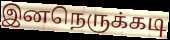
இனநெருக்கடி